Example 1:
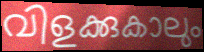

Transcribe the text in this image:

വിളക്കുകാലും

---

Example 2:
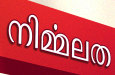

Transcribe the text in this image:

നിൎമ്മലത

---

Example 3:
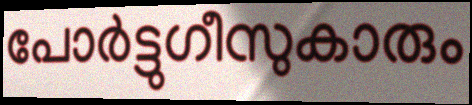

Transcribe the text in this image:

പോർട്ടുഗീസുകാരും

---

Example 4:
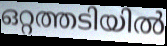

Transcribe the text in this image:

ഒറ്റത്തടിയിൽ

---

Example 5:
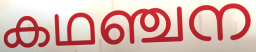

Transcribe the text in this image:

കഥഞ്ചന